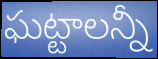
ఘట్టాలన్నీ